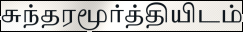
சுந்தரமூர்த்தியிடம்